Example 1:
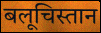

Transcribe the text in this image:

बलूचिस्तान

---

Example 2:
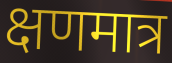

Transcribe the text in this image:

क्षणमात्र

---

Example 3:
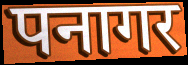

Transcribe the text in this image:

पनागर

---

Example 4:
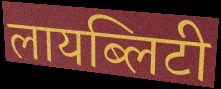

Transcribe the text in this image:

लायब्लिटी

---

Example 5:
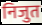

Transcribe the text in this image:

निजुत